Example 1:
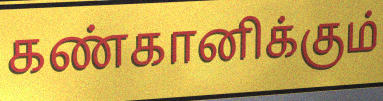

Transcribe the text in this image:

கண்கானிக்கும்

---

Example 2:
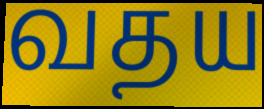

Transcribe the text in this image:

வதய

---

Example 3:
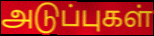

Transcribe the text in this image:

அடுப்புகள்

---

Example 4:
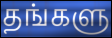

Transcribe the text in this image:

தங்களு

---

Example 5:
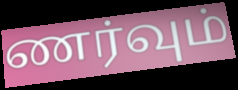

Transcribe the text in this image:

ணர்வும்